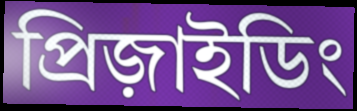
প্রিজ়াইডিং